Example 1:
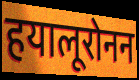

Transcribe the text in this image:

हयालूरोनन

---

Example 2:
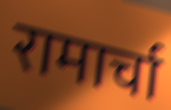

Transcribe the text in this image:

रामार्चा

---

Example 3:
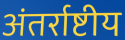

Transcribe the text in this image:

अंतर्राष्टीय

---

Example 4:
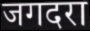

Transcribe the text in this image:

जगदरा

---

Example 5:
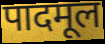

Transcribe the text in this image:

पादमूल